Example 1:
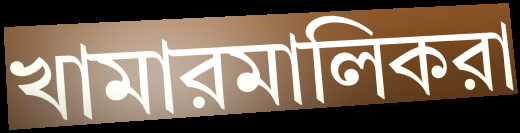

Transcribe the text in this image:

খামারমালিকরা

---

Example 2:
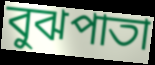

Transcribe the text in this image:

বুঝপাতা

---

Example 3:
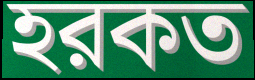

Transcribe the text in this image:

হরকত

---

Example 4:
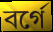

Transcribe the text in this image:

বর্গে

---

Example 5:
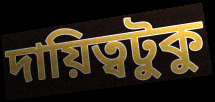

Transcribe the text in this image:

দায়িত্বটুকু